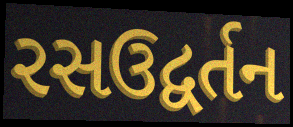
રસઉદ્વર્તન